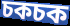
চকচক